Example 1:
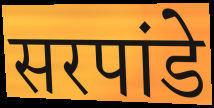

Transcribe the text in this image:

सरपांडे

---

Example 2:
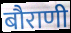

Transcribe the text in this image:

बौराणी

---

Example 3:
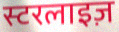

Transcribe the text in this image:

स्टरलाइज़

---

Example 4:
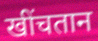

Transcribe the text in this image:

खींचतान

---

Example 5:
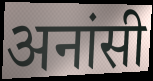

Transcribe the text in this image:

अनांसी